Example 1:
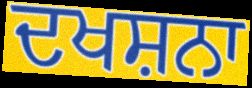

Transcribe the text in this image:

ਦਖਸ਼ਨਾ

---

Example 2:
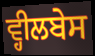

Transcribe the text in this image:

ਵ੍ਹੀਲਬੇਸ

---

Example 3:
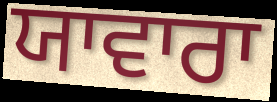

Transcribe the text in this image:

ਯਾਵਾਰਾ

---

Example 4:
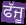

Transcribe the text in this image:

ਫੱਜੂ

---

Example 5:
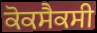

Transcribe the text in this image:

ਕੋਕਸੈਕਸੀ